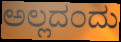
ಅಲ್ಲದಂದು